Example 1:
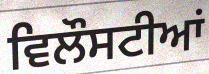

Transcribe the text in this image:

ਵਿਲੌਸਟੀਆਂ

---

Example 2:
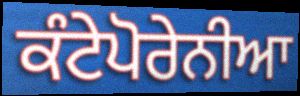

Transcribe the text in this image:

ਕੰਟੇਪੋਰੇਨੀਆ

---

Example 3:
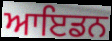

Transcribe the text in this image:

ਆਇਡਨ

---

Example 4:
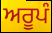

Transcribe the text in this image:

ਅਰੂਪੰ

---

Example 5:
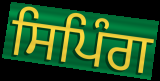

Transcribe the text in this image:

ਸਿਪਿੰਗ